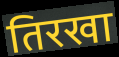
तिरखा